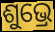
ଶୁଭ୍ରେ